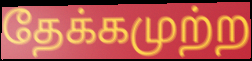
தேக்கமுற்ற